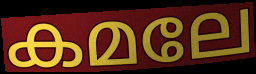
കമലേ